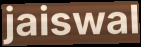
jaiswal